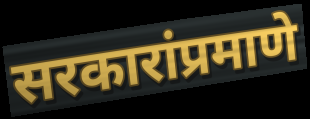
सरकारांप्रमाणे